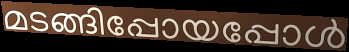
മടങ്ങിപ്പോയപ്പോൾ